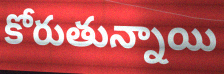
కోరుతున్నాయి